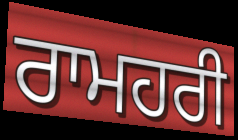
ਰਾਮਹਰੀ